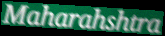
Maharahshtra